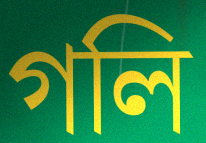
গলি